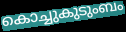
കൊച്ചുകുടുംബം